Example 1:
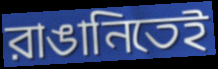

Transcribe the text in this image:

রাঙানিতেই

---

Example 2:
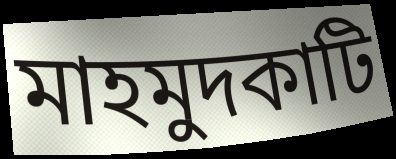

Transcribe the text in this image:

মাহমুদকাটি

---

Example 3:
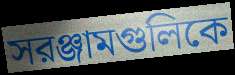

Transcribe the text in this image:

সরঞ্জামগুলিকে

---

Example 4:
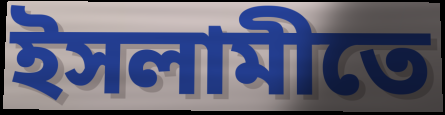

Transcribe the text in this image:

ইসলামীতে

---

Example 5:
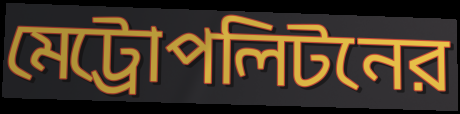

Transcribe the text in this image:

মেট্রোপলিটনের